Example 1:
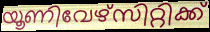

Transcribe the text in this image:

യൂണിവേഴ്സിറ്റിക്ക്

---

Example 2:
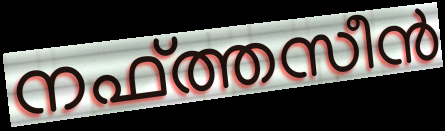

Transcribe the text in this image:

നഫ്ത്തസീൻ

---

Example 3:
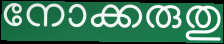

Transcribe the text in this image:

നോക്കരുതു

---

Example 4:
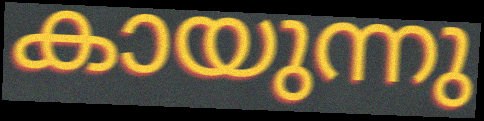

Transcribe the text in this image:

കായുന്നു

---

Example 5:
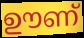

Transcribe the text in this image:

ഊണ്